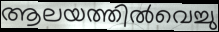
ആലയത്തിൽവെച്ചു